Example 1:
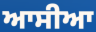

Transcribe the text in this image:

ਆਸੀਆ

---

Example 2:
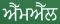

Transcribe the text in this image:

ਐੱਮਐੱਲ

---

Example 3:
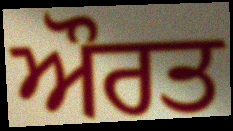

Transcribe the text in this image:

ਔਰਤ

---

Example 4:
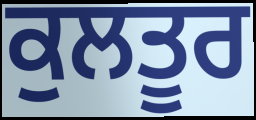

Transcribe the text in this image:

ਕੁਲਤੂਰ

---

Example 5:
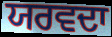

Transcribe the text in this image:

ਯਰਵਦਾ